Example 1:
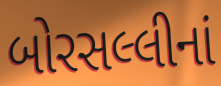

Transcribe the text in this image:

બોરસલ્લીનાં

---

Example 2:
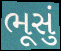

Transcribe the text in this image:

ભૂસું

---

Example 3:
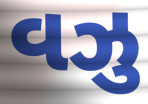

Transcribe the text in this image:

વઝુ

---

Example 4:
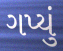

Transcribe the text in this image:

ગપ્યું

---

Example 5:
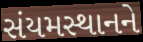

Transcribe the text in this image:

સંયમસ્થાનને